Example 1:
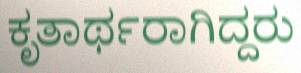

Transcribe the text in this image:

ಕೃತಾರ್ಥರಾಗಿದ್ದರು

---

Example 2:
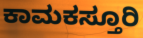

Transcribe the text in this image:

ಕಾಮಕಸ್ತೂರಿ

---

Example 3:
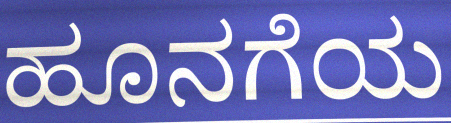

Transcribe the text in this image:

ಹೂನಗೆಯ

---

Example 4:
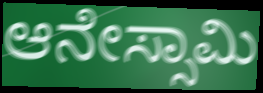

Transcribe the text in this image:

ಆನೇಸ್ಸಾಮಿ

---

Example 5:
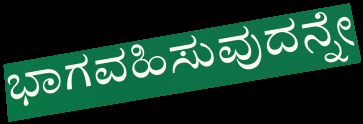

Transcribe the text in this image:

ಭಾಗವಹಿಸುವುದನ್ನೇ